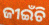
ଜୀଇଁଚି